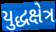
યુદ્ધક્ષેત્ર